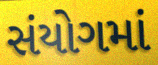
સંયોગમાં